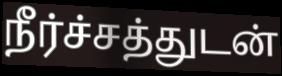
நீர்ச்சத்துடன்